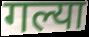
गल्या